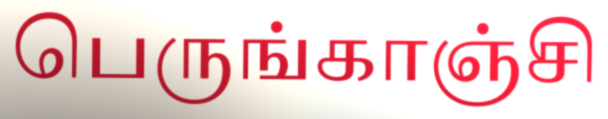
பெருங்காஞ்சி